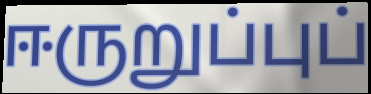
ஈருறுப்புப்